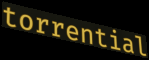
torrential